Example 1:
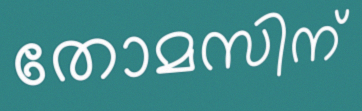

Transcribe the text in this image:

തോമസിന്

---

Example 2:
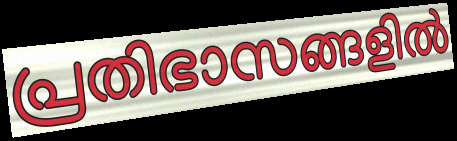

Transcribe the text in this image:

പ്രതിഭാസങ്ങളിൽ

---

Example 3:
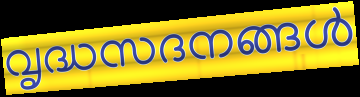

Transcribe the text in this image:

വൃദ്ധസദനങ്ങൾ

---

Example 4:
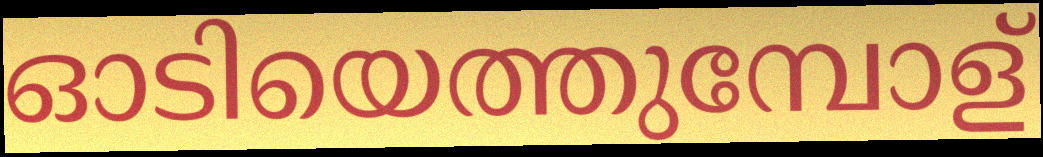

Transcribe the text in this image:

ഓടിയെത്തുമ്പോള്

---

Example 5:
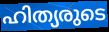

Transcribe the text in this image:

ഹിത്യരുടെ